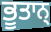
ਭੂਤਾਨ੍